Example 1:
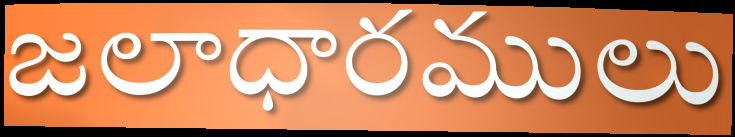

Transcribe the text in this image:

జలాధారములు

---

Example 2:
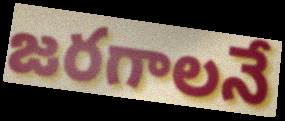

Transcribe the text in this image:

జరగాలనే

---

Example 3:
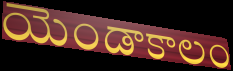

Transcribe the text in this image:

యెండాకాలం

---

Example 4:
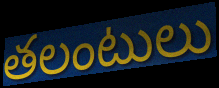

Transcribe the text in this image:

తలంటులు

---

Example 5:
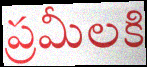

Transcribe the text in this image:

ప్రమీలకి